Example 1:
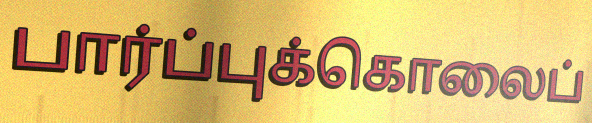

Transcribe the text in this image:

பார்ப்புக்கொலைப்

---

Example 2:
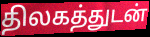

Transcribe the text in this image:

திலகத்துடன்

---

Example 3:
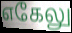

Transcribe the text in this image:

எகேலு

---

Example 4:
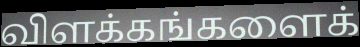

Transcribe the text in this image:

விளக்கங்களைக்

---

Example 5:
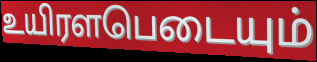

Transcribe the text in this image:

உயிரளபெடையும்